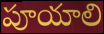
పూయాలి